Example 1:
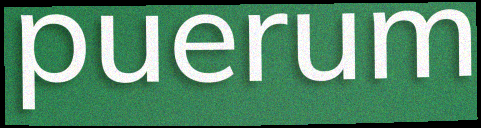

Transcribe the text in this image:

puerum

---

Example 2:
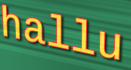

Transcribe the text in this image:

hallu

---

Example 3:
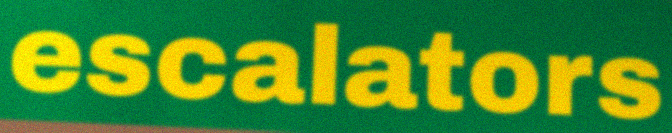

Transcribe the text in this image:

escalators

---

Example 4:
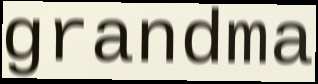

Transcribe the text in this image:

grandma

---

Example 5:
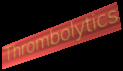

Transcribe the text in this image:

Thrombolytics